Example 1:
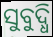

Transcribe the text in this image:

ସୁବୁଦ୍ଧି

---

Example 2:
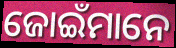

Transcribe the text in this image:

ଜୋଇଁମାନେ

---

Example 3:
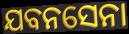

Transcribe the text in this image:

ଯବନସେନା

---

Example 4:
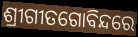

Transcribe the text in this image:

ଶ୍ରୀଗୀତଗୋବିନ୍ଦରେ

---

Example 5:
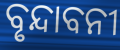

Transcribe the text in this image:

ବୃନ୍ଦାବନୀ